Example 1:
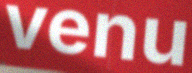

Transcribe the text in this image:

venu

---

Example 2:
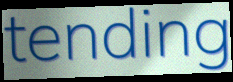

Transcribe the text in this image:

tending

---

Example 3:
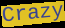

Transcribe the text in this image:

Crazy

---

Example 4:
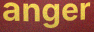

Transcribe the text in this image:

anger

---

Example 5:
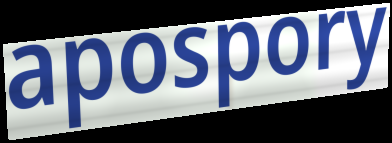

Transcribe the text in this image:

apospory